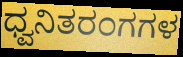
ಧ್ವನಿತರಂಗಗಳ